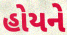
હોયને